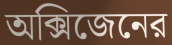
অক্সিজেনের